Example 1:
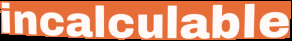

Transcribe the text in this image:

incalculable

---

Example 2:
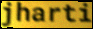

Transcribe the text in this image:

jharti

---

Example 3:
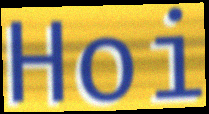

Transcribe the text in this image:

Hoi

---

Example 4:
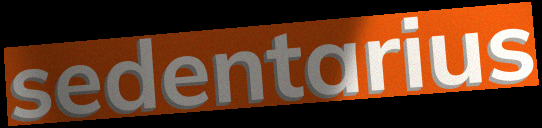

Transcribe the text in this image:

sedentarius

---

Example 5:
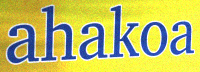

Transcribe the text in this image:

ahakoa